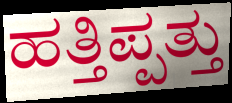
ಹತ್ತಿಪ್ಪತ್ತು